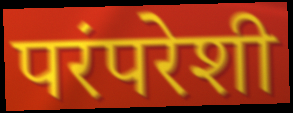
परंपरेशी